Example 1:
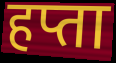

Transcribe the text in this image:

हप्ता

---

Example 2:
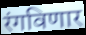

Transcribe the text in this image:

रंगविणार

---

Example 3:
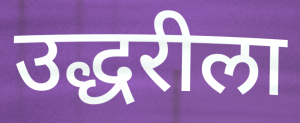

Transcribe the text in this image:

उद्धरीला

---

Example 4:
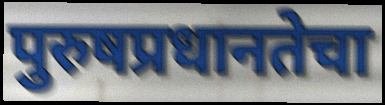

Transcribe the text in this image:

पुरुषप्रधानतेचा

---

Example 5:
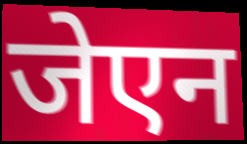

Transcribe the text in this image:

जेएन